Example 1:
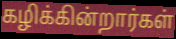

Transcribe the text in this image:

கழிக்கின்றார்கள்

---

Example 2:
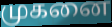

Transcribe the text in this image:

முகனை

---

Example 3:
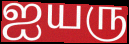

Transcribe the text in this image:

ஐயரு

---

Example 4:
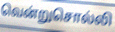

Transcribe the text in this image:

வென்றுசொல்லி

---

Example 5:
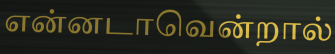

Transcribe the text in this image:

என்னடாவென்றால்